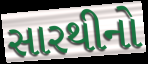
સારથીનો